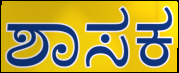
ಶಾಸಕ